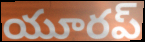
యూరప్